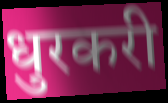
धुरकरी